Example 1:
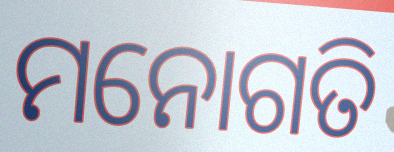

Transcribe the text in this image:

ମନୋଗତି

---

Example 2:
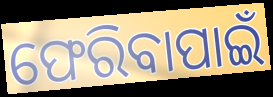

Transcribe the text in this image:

ଫେରିବାପାଇଁ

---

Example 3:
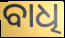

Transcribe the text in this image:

ବାଧି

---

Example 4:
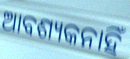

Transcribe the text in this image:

ଆବଶ୍ୟକନାହିଁ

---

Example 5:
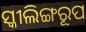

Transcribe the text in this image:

ସ୍କୀଲିଙ୍ଗରୂପ